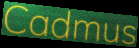
Cadmus